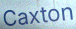
Caxton